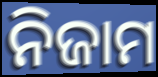
ନିଜାମ